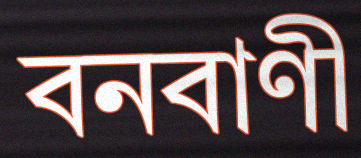
বনবাণী